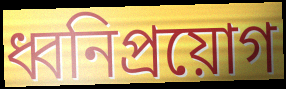
ধ্বনিপ্রয়োগ